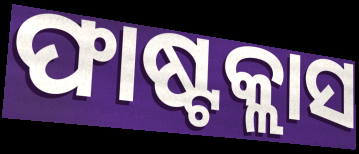
ଫାଷ୍ଟକ୍ଲାସ